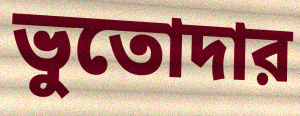
ভুতোদার